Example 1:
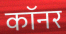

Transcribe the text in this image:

कॉनर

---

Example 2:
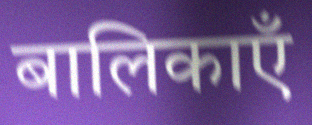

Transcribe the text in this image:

बालिकाएँ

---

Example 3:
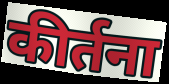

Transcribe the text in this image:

कीर्तना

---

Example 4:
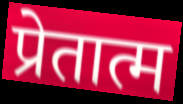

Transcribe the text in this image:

प्रेतात्म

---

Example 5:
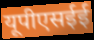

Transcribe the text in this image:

यूपीएसईई